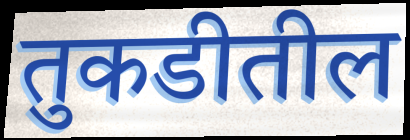
तुकडीतील